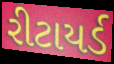
રીટાયર્ડ